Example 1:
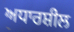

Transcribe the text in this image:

ਅਧਾਰਸ਼ੀਲ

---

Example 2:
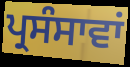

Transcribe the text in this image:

ਪ੍ਰਸੰਸਾਵਾਂ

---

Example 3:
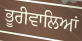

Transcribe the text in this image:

ਭੂਰੀਵਾਲਿਆਂ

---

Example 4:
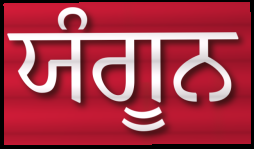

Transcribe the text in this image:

ਯੰਗੂਨ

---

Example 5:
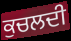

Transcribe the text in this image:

ਕੁਚਲਦੀ